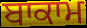
ਬਾਕਾਮ